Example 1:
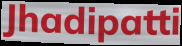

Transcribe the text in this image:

Jhadipatti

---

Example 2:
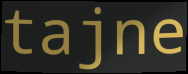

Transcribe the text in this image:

tajne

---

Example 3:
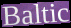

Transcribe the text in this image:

Baltic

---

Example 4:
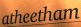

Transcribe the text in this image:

atheetham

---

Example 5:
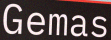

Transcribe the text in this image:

Gemas